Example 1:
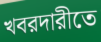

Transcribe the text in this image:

খবরদারীতে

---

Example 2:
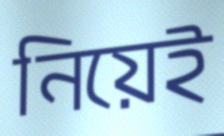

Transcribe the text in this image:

নিয়েই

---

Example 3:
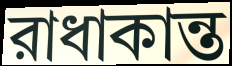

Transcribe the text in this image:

রাধাকান্ত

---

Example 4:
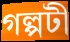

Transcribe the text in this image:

গল্পটী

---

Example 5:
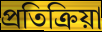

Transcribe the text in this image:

প্রতিক্রিয়া